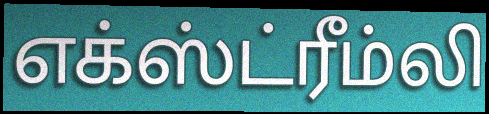
எக்ஸ்ட்ரீம்லி